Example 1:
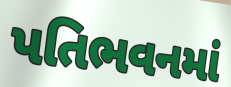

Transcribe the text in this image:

પતિભવનમાં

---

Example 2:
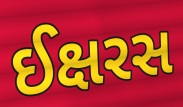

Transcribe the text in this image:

ઈક્ષરસ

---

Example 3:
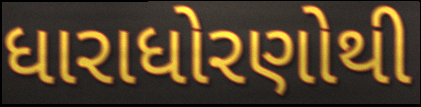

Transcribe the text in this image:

ધારાધોરણોથી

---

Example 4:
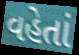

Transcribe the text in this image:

વહેતાં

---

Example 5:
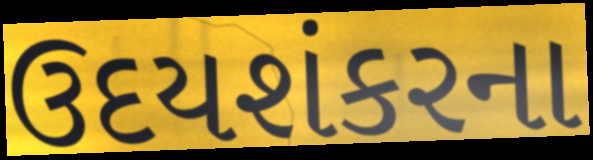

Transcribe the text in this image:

ઉદયશંકરના